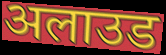
अलाउड